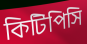
কিটিপিসি